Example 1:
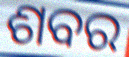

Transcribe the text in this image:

ଶବର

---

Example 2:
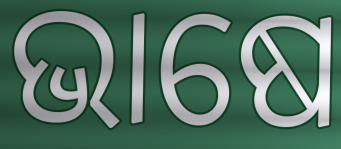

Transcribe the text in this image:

ଭାଷେ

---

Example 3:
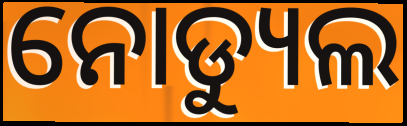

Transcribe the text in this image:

ନୋଡ୍ୟୁଲ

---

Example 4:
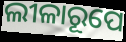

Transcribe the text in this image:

ଲୀଳାରୂପେ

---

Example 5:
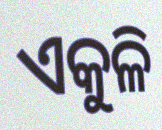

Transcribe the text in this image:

ଏକୁଳି